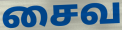
சைவ